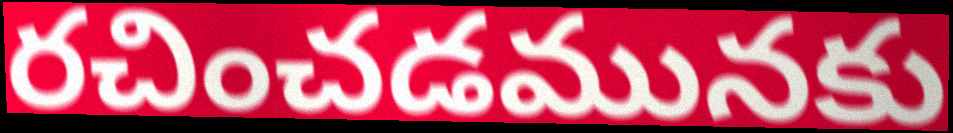
రచించడమునకు